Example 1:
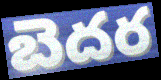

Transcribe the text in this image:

బెదర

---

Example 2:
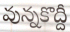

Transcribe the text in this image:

వున్నకొద్దీ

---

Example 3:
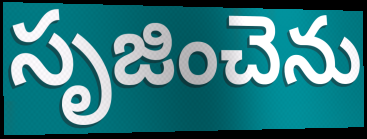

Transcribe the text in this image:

సృజించెను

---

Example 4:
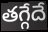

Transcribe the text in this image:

తగ్గేదే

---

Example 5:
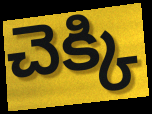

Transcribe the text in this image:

చెక్కి